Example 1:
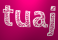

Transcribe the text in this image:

tuaj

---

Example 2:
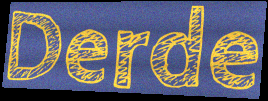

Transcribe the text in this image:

Derde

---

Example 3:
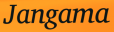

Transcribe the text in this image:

Jangama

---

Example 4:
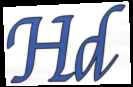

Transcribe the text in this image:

Hd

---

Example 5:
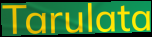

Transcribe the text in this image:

Tarulata